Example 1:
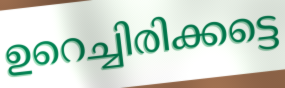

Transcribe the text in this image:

ഉറെച്ചിരിക്കട്ടെ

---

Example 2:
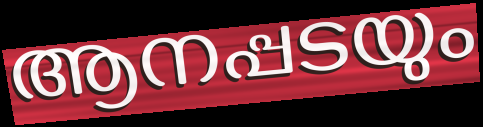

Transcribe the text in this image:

ആനപ്പടയും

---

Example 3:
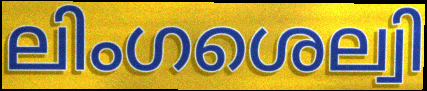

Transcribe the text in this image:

ലിംഗശെല്വി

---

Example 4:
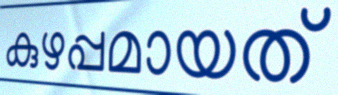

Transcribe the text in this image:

കുഴപ്പമായത്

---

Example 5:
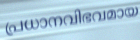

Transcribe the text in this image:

പ്രധാനവിഭവമായ